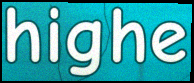
highe